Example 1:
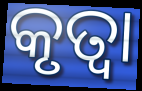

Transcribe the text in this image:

କୃତ୍ଵା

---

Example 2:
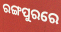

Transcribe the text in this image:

ରଙ୍ଗପୁରରେ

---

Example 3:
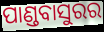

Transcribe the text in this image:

ପାଣ୍ଡବାସୁରର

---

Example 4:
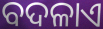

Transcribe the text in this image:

ବଦଳାଏ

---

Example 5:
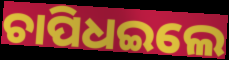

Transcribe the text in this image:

ଚାପିଧଇଲେ